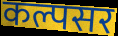
कल्पसर